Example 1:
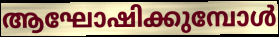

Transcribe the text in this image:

ആഘോഷിക്കുമ്പോൾ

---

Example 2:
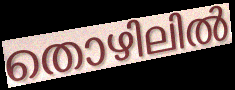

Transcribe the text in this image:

തൊഴിലിൽ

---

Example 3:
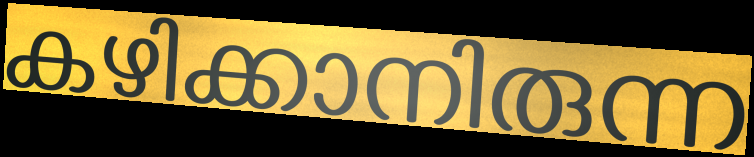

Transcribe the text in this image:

കഴിക്കാനിരുന്ന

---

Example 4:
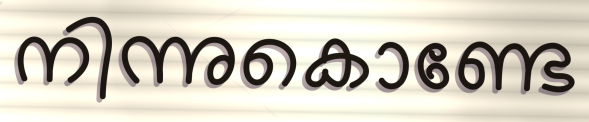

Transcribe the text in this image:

നിന്നുകൊണ്ടേ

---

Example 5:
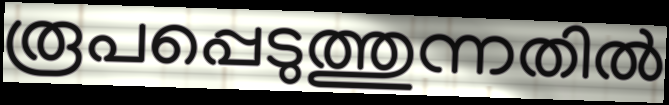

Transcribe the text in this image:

രൂപപ്പെടുത്തുന്നതിൽ